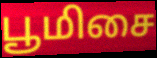
பூமிசை